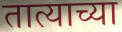
तात्याच्या